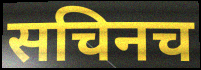
सचिनच